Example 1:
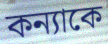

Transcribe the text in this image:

কন্যাকে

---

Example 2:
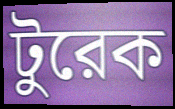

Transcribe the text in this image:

টুরেক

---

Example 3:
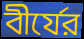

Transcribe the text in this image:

বীর্যের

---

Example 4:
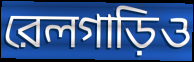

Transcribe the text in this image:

রেলগাড়িও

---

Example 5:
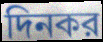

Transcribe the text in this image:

দিনকর